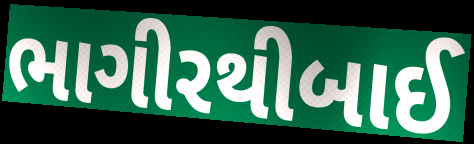
ભાગીરથીબાઈ